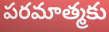
పరమాత్మకు